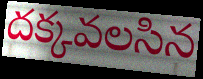
దక్కవలసిన